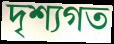
দৃশ্যগত